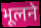
भूलने